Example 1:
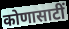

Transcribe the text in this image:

कोणासाटीं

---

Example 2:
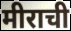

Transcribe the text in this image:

मीराची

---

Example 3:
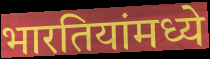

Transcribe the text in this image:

भारतियांमध्ये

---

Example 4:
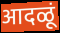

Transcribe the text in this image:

आदळूं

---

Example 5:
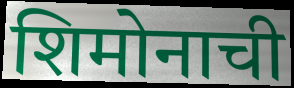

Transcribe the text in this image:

शिमोनाची